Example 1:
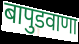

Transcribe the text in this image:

बापुडवाणा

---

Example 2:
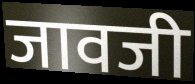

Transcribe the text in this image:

जावजी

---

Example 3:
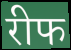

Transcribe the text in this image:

रीफ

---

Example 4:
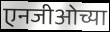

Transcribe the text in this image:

एनजीओच्या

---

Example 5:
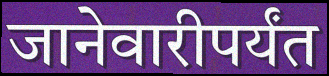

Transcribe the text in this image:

जानेवारीपर्यंत